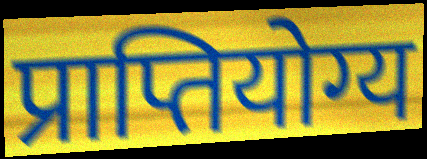
प्राप्तियोग्य